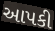
આપકી